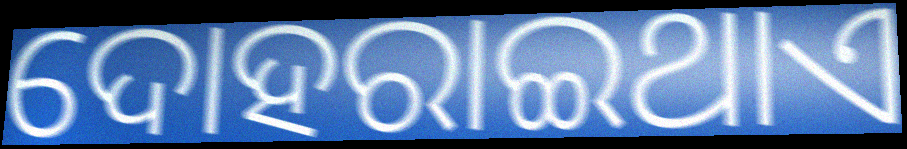
ଦୋହରାଇଥାଏ